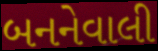
બનનેવાલી